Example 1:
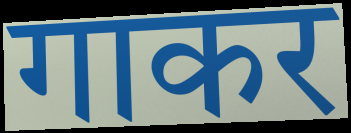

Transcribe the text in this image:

गाकर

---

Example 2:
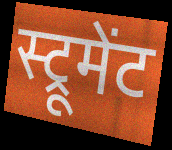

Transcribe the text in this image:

स्ट्रूमेंट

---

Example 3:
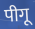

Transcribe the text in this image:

पीगू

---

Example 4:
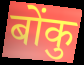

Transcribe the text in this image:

बोंकु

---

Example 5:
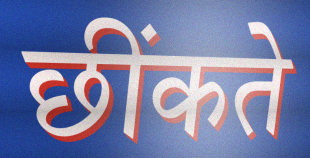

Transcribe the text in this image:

छींकते